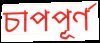
চাপপূর্ণ